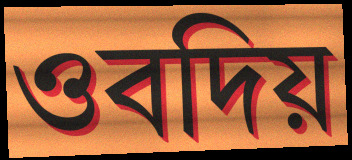
ওবদিয়